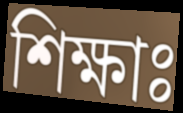
শিক্ষাঃ